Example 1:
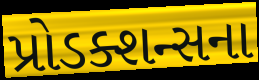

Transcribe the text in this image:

પ્રોડક્શન્સના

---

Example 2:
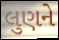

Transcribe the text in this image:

લુણને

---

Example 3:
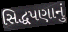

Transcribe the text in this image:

સિદ્ધપણાનું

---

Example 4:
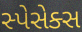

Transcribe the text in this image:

સ્પેસેક્સ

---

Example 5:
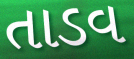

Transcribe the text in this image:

તાડવ